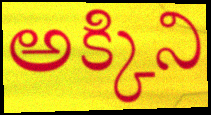
అక్కిని